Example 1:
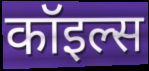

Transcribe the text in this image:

कॉइल्स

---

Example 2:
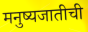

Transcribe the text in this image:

मनुष्यजातीची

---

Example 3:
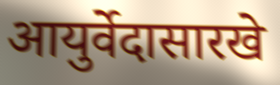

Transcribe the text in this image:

आयुर्वेदासारखे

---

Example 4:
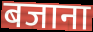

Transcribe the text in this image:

बजाना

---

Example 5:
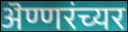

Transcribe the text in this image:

ऄण्णरंच्यर